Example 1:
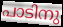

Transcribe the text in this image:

പാടിനു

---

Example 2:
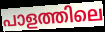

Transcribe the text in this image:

പാളത്തിലെ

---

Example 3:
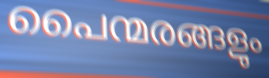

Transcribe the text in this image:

പൈന്മരങ്ങളും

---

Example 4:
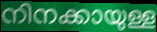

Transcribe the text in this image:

നിനക്കായുള്ള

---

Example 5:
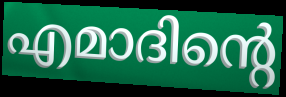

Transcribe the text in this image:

എമാദിന്റെ